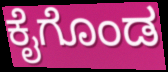
ಕೈಗೊಂಡ